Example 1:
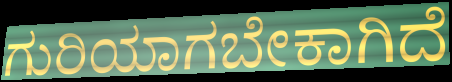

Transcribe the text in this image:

ಗುರಿಯಾಗಬೇಕಾಗಿದೆ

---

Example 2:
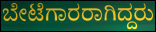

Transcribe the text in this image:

ಬೇಟೆಗಾರರಾಗಿದ್ದರು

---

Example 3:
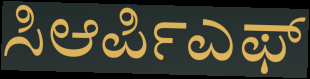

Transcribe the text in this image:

ಸಿಆರ್ಪಿಎಫ್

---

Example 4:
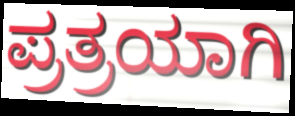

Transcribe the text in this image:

ಪ್ರತ್ರಯಾಗಿ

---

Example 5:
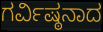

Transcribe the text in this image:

ಗರ್ವಿಷ್ಠನಾದ